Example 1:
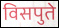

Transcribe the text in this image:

विसपुते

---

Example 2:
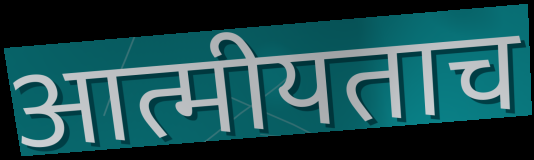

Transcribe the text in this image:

आत्मीयताच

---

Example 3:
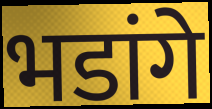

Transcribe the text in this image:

भडांगे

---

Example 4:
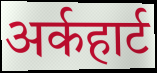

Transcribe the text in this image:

अर्कहार्ट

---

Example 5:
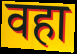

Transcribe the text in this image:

वहा